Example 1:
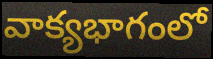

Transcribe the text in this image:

వాక్యభాగంలో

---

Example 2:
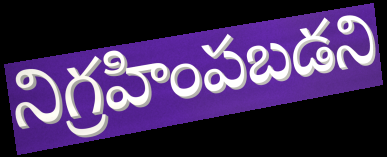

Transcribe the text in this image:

నిగ్రహింపబడని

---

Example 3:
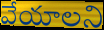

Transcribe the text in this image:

వేయాలని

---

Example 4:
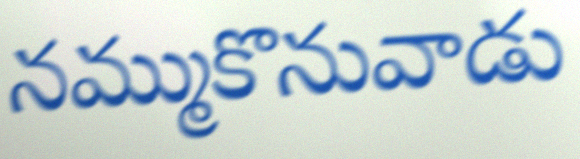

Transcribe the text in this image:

నమ్ముకొనువాడు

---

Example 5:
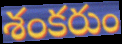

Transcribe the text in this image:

శంకరుం